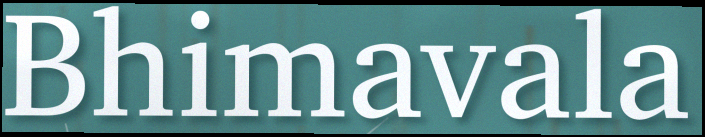
Bhimavala